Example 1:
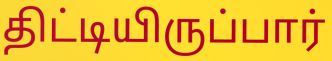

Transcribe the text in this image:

திட்டியிருப்பார்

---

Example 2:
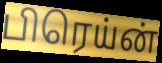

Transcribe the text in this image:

பிரெய்ன்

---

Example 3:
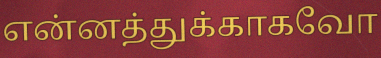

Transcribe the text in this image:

என்னத்துக்காகவோ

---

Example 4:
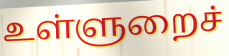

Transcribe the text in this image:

உள்ளுறைச்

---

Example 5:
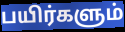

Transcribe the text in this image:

பயிர்களும்